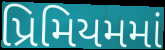
પ્રિમિયમમાં